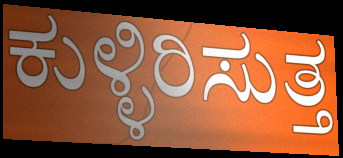
ಕುಳ್ಳಿರಿಸುತ್ತ